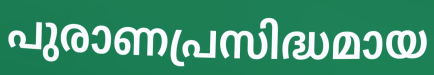
പുരാണപ്രസിദ്ധമായ